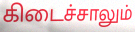
கிடைச்சாலும்